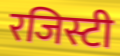
रजिस्टी